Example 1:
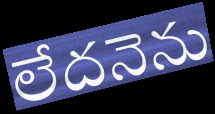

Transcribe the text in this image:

లేదనెను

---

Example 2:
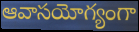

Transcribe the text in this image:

ఆవాసయోగ్యంగా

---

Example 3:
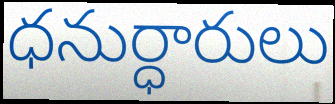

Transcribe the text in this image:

ధనుర్ధారులు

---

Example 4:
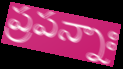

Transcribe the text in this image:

ప్రపన్నాః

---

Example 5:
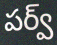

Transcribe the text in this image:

పర్వ్